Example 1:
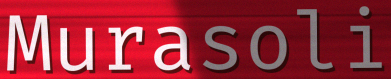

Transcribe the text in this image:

Murasoli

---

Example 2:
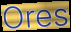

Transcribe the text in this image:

Ores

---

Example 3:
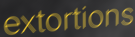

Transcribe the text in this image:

extortions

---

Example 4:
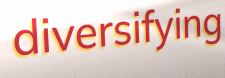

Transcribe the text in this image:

diversifying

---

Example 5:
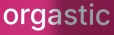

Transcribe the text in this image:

orgastic